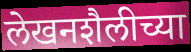
लेखनशैलीच्या